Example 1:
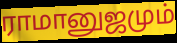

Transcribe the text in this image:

ராமானுஜமும்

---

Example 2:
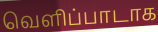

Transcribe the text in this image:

வெளிப்பாடாக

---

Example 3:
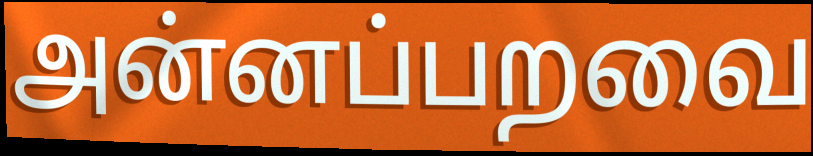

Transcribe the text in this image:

அன்னப்பறவை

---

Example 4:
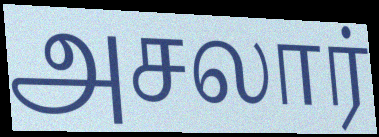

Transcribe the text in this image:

அசலார்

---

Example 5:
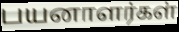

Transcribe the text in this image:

பயனாளர்கள்